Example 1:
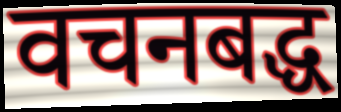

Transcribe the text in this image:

वचनबद्ध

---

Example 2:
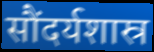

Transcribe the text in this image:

सौंदर्यशास्र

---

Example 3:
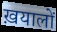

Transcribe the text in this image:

ख़यालों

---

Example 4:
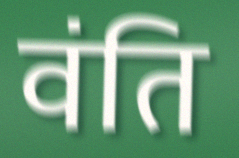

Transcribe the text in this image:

वंति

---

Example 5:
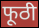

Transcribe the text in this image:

फूठी